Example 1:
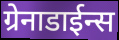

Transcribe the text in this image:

ग्रेनाडाईन्स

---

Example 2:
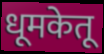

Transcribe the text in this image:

धूमकेतू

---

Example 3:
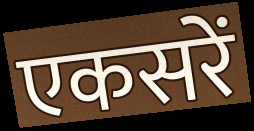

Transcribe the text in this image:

एकसरें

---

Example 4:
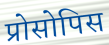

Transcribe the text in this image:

प्रोसोपिस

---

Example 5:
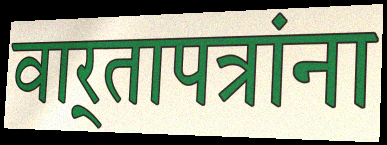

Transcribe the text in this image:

वार्तापत्रांना